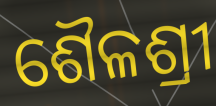
ଶୈଳଶ୍ରୀ